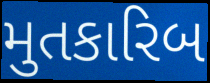
મુતકારિબ